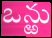
ఒన్ఱు